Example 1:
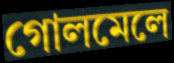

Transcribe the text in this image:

গোলমেলে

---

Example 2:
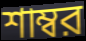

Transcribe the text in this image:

শাম্বর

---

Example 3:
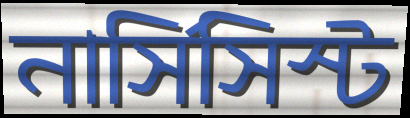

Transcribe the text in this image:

নার্সিসিস্ট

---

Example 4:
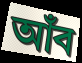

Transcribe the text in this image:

আঁব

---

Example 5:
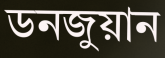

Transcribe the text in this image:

ডনজুয়ান